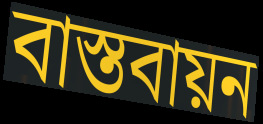
বাস্তবায়ন